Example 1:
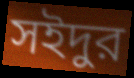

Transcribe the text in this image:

সইদুর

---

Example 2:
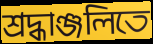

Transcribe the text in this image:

শ্রদ্ধাঞ্জলিতে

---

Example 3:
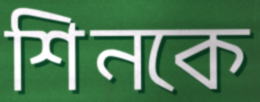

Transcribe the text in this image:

শিনকে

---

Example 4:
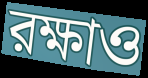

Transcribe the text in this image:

রক্ষাও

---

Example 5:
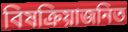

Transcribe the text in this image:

বিষক্রিয়াজনিত